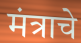
मंत्राचे